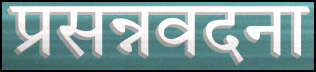
प्रसन्नवदना